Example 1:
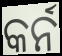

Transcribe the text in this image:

କର୍ନ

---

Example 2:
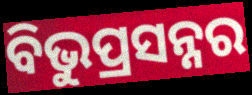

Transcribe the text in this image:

ବିଭୁପ୍ରସନ୍ନର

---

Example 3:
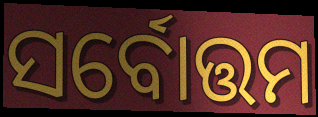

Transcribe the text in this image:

ସର୍ବୋତ୍ତମ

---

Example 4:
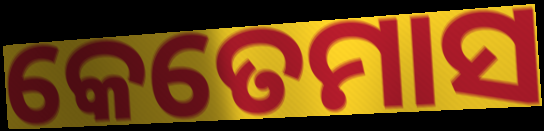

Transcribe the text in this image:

କେତେମାସ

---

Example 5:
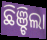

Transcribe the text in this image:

ଛିଞ୍ଚିଲା